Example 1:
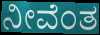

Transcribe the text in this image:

ನೀವೆಂತ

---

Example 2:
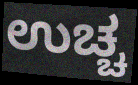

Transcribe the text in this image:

ಉಚ್ಚ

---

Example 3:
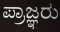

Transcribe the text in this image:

ಪ್ರಾಜ್ಞರು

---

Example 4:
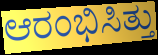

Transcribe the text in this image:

ಆರಂಭಿಸಿತ್ತು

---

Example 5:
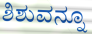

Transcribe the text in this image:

ಶಿಶುವನ್ನೂ